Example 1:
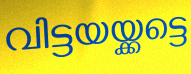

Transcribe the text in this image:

വിട്ടയയ്ക്കട്ടെ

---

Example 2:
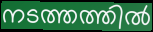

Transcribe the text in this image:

നടത്തത്തിൽ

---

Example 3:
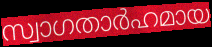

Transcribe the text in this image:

സ്വാഗതാർഹമായ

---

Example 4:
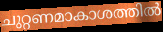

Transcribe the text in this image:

ചുറ്റണമാകാശത്തിൽ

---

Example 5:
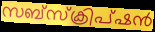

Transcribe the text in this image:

സബ്സ്ക്രിപ്ഷൻ